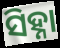
ସିହ୍ନା